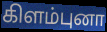
கிளம்புனா